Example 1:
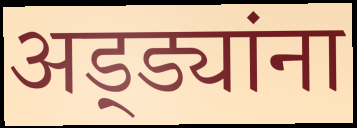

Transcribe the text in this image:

अड्ड्यांना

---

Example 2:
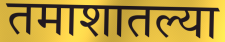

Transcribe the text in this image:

तमाशातल्या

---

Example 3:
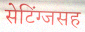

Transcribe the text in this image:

सेटिंग्जसह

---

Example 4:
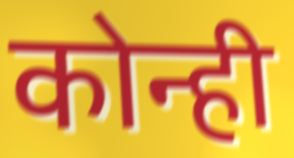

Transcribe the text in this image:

कोन्ही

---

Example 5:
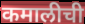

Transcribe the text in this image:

कमालीची